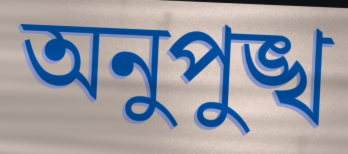
অনুপুঙ্খ